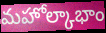
మహోల్కాభాం